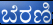
ಬೆರಣಿ